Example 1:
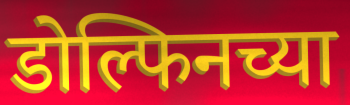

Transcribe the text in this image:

डोल्फिनच्या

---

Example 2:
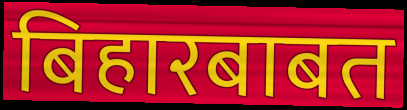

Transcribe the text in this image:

बिहारबाबत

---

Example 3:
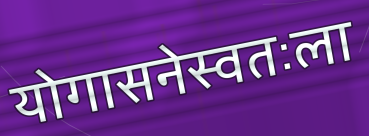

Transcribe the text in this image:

योगासनेस्वतःला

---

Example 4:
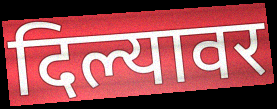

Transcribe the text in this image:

दिल्यावर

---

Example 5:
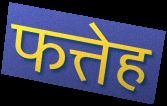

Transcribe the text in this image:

फत्तेह